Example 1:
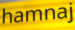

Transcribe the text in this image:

hamnaj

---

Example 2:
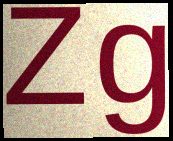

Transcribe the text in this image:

Zg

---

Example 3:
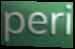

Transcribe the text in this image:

peri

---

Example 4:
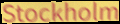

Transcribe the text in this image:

Stockholm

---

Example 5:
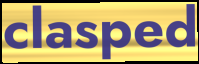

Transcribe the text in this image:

clasped